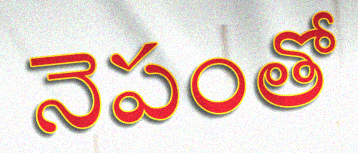
నెపంతో